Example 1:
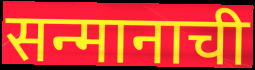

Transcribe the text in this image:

सन्मानाची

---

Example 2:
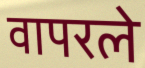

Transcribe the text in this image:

वापरले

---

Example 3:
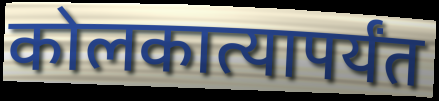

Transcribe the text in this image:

कोलकात्यापर्यंत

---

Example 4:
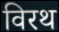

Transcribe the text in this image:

विरथ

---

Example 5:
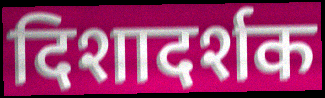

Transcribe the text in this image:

दिशादर्शक